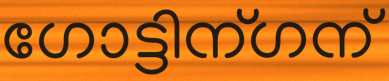
ഗോട്ടിന്ഗന്